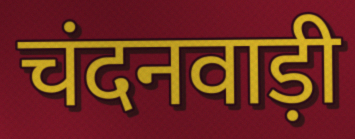
चंदनवाड़ी